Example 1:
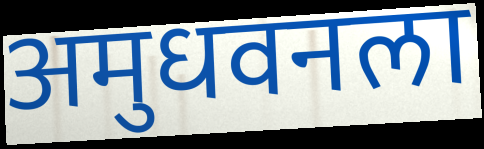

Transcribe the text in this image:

अमुधवनला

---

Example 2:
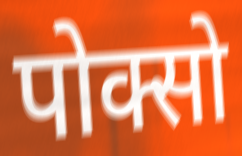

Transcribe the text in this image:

पोक्सो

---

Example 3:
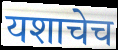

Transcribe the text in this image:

यशाचेच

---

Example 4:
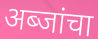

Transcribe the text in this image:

अब्जांचा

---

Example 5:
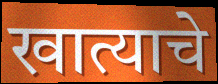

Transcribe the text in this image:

खात्याचे